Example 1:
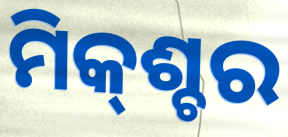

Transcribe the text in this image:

ମିକ୍‌ଶ୍ଚର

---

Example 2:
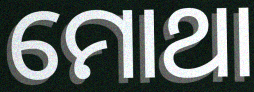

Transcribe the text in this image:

ମୋଥା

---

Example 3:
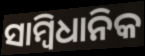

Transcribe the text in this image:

ସାମ୍ବିଧାନିକ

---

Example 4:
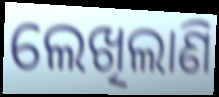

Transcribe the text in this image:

ଲେଖିଲାଣି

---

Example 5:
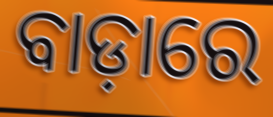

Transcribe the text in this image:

ବାଡ଼ାରେ